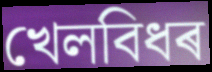
খেলবিধৰ